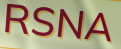
RSNA